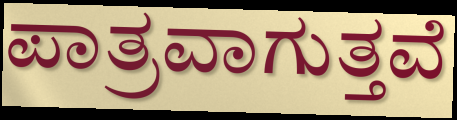
ಪಾತ್ರವಾಗುತ್ತವೆ